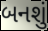
બનશું